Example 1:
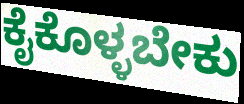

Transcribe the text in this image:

ಕೈಕೊಳ್ಳಬೇಕು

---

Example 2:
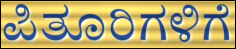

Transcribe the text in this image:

ಪಿತೂರಿಗಳಿಗೆ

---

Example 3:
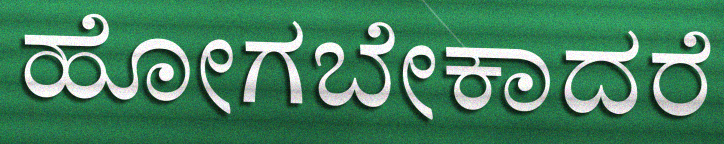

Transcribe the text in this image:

ಹೋಗಬೇಕಾದರೆ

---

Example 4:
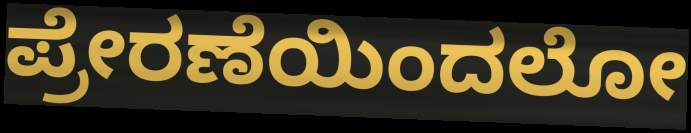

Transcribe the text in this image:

ಪ್ರೇರಣೆಯಿಂದಲೋ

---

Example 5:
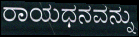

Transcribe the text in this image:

ರಾಯಧನವನ್ನು